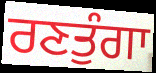
ਰਣਤੁੰਗਾ